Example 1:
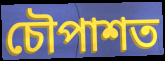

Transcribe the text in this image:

চৌপাশত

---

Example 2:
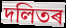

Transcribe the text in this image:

দলিতৰ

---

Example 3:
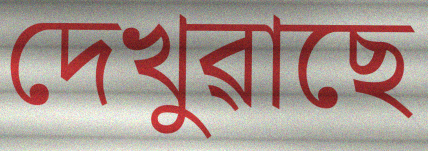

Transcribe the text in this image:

দেখুৱাছে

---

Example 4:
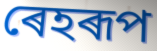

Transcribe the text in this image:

ৰেহৰূপ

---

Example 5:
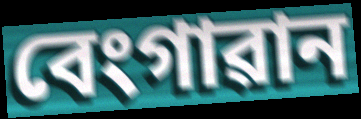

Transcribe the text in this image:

বেংগাৱান